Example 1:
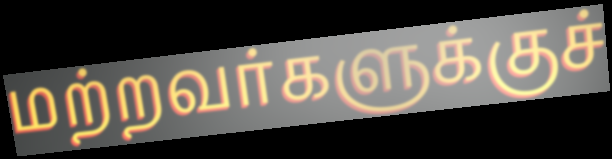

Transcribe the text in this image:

மற்றவர்களுக்குச்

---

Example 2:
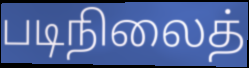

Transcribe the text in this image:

படிநிலைத்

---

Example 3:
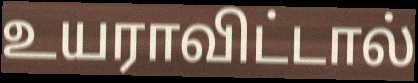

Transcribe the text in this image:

உயராவிட்டால்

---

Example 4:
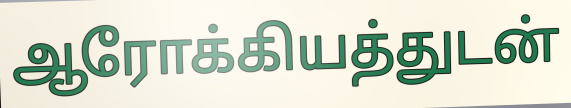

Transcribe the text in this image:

ஆரோக்கியத்துடன்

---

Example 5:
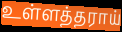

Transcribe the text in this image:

உள்ளத்தராய்